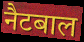
नैटबाल